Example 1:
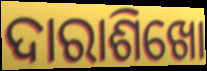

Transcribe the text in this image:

ଦାରାଶିଖୋ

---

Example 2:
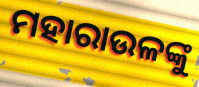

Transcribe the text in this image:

ମହାରାଉଳଙ୍କୁ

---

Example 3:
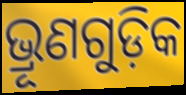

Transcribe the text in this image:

ଭ୍ରୂଣଗୁଡ଼ିକ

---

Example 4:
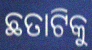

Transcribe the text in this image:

ଛତାଟିକୁ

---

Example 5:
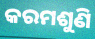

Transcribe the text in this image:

କରମଶୁଣି